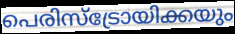
പെരിസ്ട്രോയിക്കയും